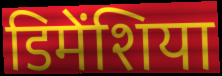
डिमेंशिया